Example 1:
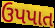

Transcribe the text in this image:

ઉપપાત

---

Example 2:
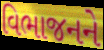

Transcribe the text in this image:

વિભાજનને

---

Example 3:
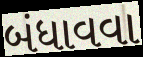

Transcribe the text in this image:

બંધાવવા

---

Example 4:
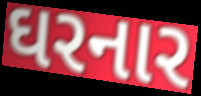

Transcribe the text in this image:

ઘરનાર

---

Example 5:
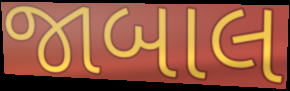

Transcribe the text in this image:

જાબાલ